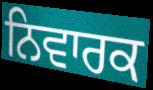
ਨਿਵਾਰਕ